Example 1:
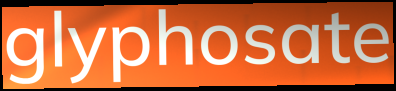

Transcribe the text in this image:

glyphosate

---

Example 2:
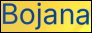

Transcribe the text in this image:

Bojana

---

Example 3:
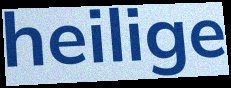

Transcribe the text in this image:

heilige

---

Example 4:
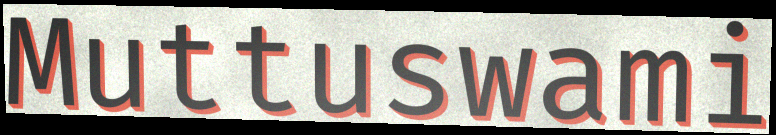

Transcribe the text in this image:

Muttuswami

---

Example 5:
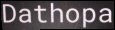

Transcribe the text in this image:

Dathopa